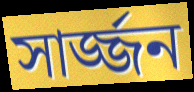
সার্জ্জন